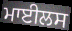
ਮਾਈਲਸ